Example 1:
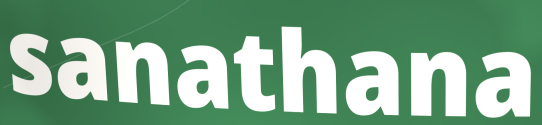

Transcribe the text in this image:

sanathana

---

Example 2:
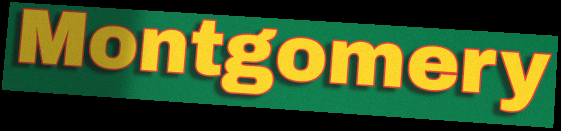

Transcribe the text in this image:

Montgomery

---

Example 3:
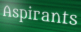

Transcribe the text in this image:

Aspirants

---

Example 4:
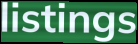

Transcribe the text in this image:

listings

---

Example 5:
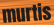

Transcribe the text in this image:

murtis